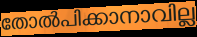
തോൽപിക്കാനാവില്ല